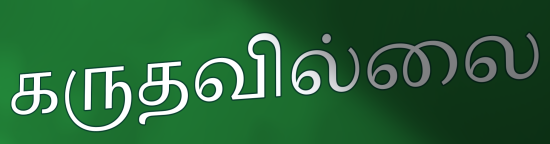
கருதவில்லை